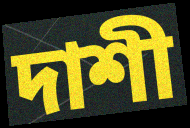
দাশী